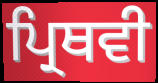
ਪ੍ਰਿਥਵੀ